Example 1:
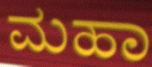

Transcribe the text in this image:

ಮಹಾ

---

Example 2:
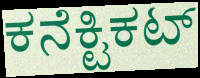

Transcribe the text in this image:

ಕನೆಕ್ಟಿಕಟ್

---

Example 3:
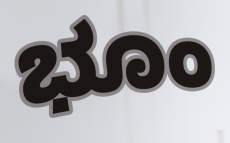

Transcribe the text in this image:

ಭೂಂ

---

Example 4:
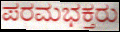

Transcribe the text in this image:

ಪರಮಭಕ್ತರು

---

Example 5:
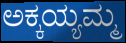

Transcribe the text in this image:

ಅಕ್ಕಯ್ಯಮ್ಮ